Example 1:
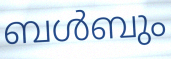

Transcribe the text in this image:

ബൾബും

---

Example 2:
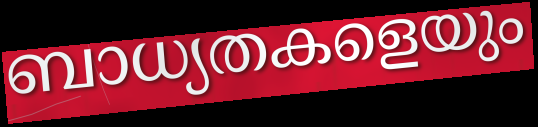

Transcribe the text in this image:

ബാധ്യതകളെയും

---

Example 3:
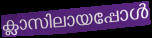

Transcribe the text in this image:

ക്ലാസിലായപ്പോൾ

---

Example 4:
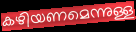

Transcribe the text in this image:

കഴിയണമെന്നുള്ള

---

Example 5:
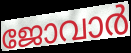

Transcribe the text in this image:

ജോവാർ